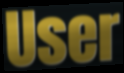
User